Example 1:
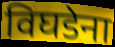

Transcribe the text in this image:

विघडेना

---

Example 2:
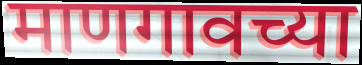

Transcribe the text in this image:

माणगावच्या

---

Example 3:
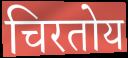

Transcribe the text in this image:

चिरतोय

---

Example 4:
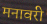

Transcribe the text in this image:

मनावरी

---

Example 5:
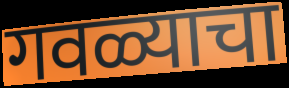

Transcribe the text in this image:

गवळ्याचा